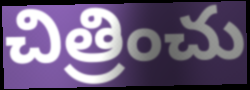
చిత్రించు